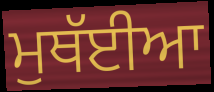
ਮੁਥੱਈਆ